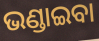
ଭଣ୍ଡାଇବା